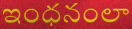
ఇంధనంలా